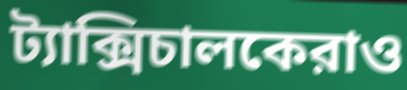
ট্যাক্সিচালকেরাও